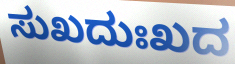
ಸುಖದುಃಖದ